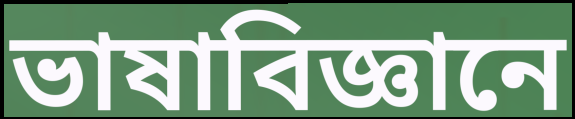
ভাষাবিজ্ঞানে